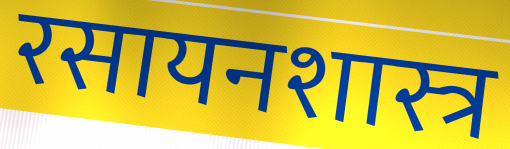
रसायनशास्त्र